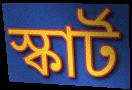
স্কাৰ্ট